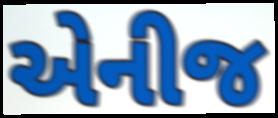
એનીજ